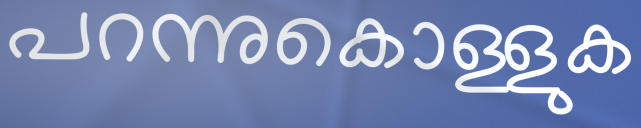
പറന്നുകൊള്ളുക